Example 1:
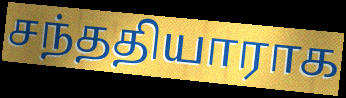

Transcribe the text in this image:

சந்ததியாராக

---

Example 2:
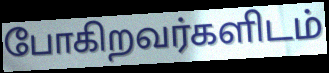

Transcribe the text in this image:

போகிறவர்களிடம்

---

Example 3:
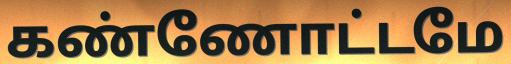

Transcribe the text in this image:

கண்ணோட்டமே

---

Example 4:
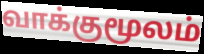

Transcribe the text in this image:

வாக்குமூலம்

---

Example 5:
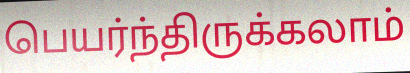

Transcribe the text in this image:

பெயர்ந்திருக்கலாம்